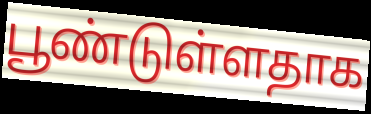
பூண்டுள்ளதாக